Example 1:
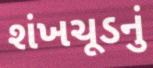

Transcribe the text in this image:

શંખચૂડનું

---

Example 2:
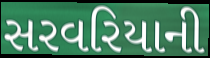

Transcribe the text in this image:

સરવરિયાની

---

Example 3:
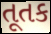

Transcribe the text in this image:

તૂતક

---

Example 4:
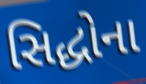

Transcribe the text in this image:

સિદ્ધોના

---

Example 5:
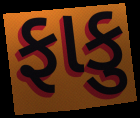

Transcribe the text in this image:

ફાકુ